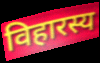
विहारस्य